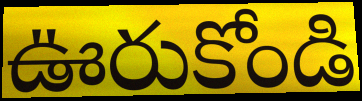
ఊరుకోండి